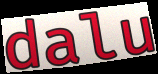
dalu